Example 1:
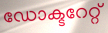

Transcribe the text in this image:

ഡോക്ടറേറ്റ്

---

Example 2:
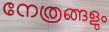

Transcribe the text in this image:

നേത്രങ്ങളും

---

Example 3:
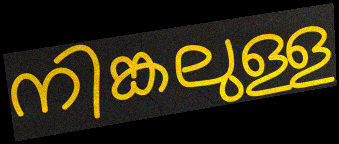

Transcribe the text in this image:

നിങ്കലുള്ള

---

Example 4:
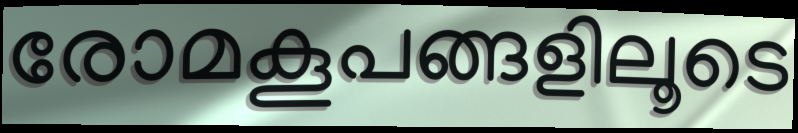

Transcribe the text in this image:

രോമകൂപങ്ങളിലൂടെ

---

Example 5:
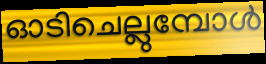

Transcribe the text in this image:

ഓടിചെല്ലുമ്പോൾ